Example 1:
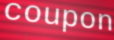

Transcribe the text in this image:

coupon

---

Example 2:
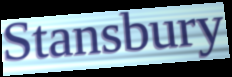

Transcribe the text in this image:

Stansbury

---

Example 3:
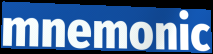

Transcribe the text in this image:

mnemonic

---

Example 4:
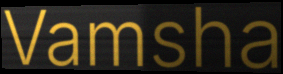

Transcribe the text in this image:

Vamsha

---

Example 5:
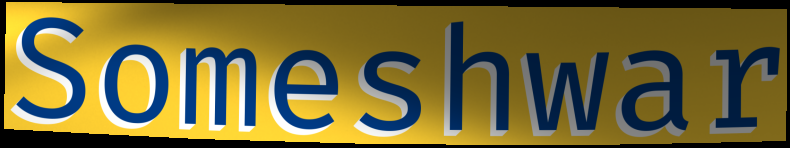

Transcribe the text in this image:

Someshwar